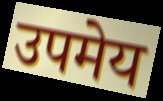
उपमेय